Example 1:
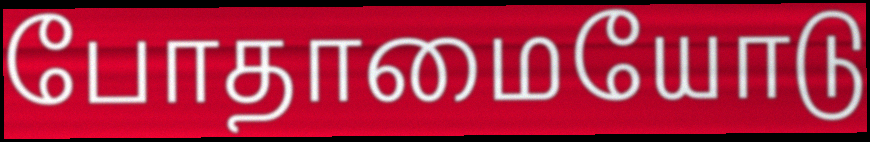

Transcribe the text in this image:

போதாமையோடு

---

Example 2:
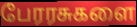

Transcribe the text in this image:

பேரரசுகளை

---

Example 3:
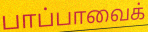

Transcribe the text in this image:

பாப்பாவைக்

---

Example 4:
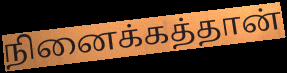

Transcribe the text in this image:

நினைக்கத்தான்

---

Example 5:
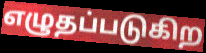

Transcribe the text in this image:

எழுதப்படுகிற